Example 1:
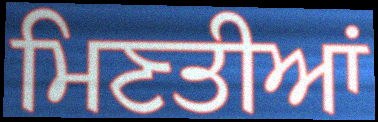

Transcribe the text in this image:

ਮਿਣਤੀਆਂ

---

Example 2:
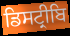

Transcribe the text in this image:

ਡਿਸਟ੍ਰੀਬਿ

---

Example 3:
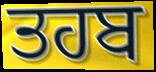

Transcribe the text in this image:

ਤਹਬ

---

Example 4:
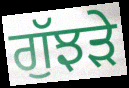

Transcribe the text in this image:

ਗੁੱਝੜੇ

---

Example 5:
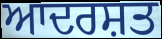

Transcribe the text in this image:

ਆਦਰਸ਼ਤ